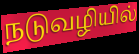
நடுவழியில்